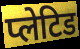
प्लेटिड